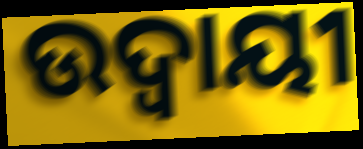
ଉଦ୍ବାୟୀ